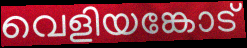
വെളിയങ്കോട്